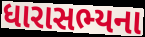
ધારાસભ્યના